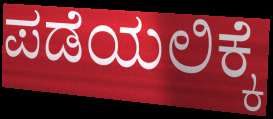
ಪಡೆಯಲಿಕ್ಕೆ